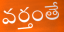
వర్తంతే